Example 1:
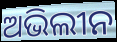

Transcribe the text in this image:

ଅଭିଲୀନ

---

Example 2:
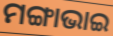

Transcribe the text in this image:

ମଙ୍ଗାଭାଇ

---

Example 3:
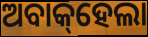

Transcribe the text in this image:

ଅବାକ୍‌ହେଲା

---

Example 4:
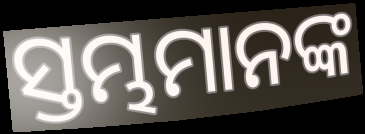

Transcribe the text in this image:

ସ୍ତମ୍ଭମାନଙ୍କ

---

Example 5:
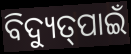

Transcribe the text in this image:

ବିଦ୍ୟୁତ୍‌ପାଇଁ